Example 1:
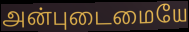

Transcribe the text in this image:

அன்புடைமையே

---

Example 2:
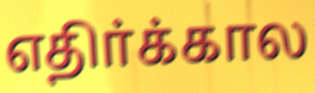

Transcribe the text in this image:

எதிர்க்கால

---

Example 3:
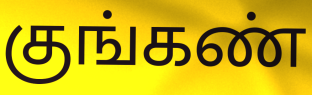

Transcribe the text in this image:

குங்கண்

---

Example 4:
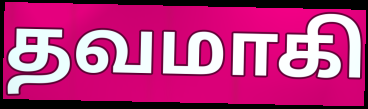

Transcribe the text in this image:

தவமாகி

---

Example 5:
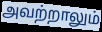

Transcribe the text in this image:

அவற்றாலும்